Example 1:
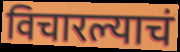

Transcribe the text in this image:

विचारल्याचं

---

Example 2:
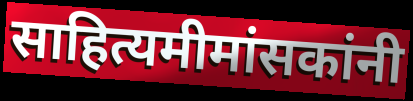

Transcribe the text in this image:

साहित्यमीमांसकांनी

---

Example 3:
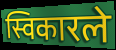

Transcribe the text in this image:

स्विकारले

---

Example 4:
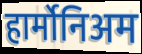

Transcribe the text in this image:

हार्मोनिअम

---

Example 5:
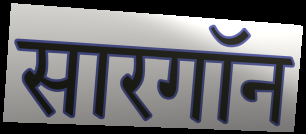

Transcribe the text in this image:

सारगॉन